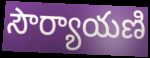
సౌర్యాయణి